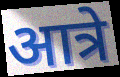
आत्रे